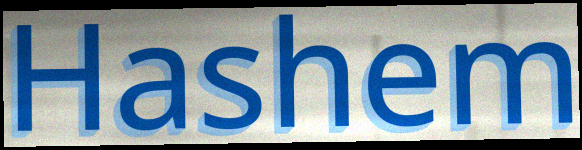
Hashem